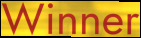
Winner